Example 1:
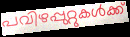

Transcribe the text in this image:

പവിഴപ്പുറ്റുകൾക്ക്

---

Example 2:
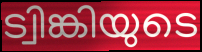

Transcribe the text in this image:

ട്വിങ്കിയുടെ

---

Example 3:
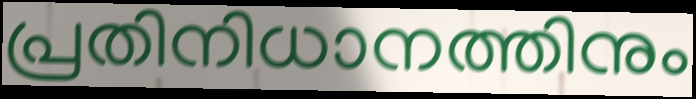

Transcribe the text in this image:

പ്രതിനിധാനത്തിനും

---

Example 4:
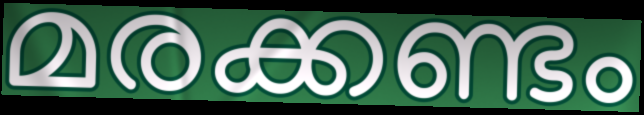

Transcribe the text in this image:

മരക്കണ്ടം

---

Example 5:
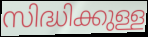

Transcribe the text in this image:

സിദ്ധിക്കുള്ള